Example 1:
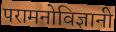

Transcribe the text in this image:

परामनोविज्ञानी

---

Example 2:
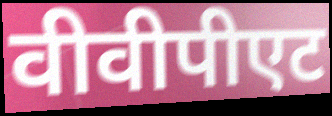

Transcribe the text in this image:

वीवीपीएट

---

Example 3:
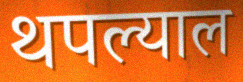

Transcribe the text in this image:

थपल्याल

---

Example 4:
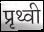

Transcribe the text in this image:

प्रृथ्वी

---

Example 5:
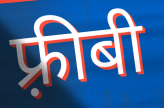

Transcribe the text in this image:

फ़्रीबी